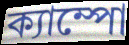
ক্যাম্পো